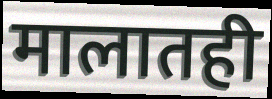
मालातही